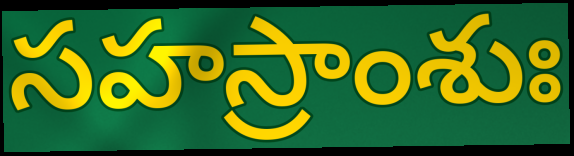
సహస్రాంశుః